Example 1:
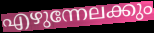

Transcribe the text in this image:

എഴുന്നേലക്കും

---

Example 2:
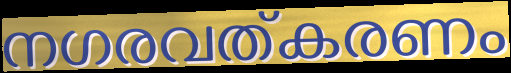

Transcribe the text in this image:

നഗരവത്കരണം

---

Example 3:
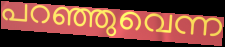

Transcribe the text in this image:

പറഞ്ഞുവെന്ന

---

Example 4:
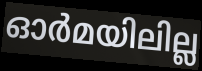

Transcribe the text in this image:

ഓർമയിലില്ല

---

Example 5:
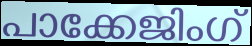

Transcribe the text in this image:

പാക്കേജിംഗ്